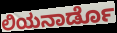
ಲಿಯನಾರ್ಡೊ